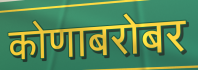
कोणाबरोबर